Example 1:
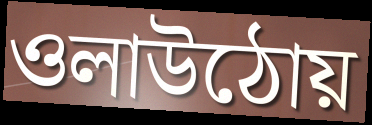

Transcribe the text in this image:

ওলাউঠোয়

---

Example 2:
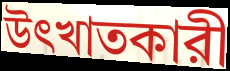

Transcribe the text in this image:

উৎখাতকারী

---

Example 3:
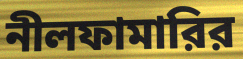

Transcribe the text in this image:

নীলফামারির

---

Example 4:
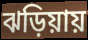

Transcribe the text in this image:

ঝড়িয়ায়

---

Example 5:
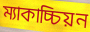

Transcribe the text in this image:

ম্যাকাচ্চিয়ন